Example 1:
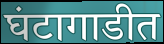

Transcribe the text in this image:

घंटागाडीत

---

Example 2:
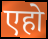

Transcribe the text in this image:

एहो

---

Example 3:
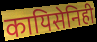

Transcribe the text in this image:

कायिसेनिही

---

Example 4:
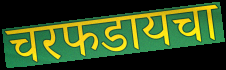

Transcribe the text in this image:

चरफडायचा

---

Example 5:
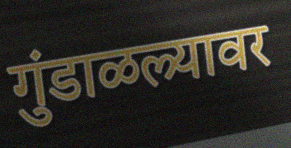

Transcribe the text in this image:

गुंडाळल्यावर